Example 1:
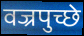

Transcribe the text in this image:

वज्रपुच्छे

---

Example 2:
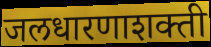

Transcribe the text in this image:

जलधारणाशक्ती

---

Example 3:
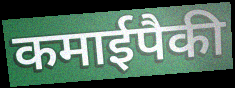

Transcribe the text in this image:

कमाईपैकी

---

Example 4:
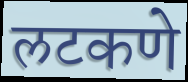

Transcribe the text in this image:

लटकणे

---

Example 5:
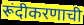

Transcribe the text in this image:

रूंदीकरणाची